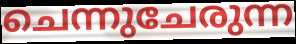
ചെന്നുചേരുന്ന